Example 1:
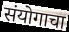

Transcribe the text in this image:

संयोगाचा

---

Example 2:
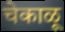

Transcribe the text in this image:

चेकाळू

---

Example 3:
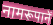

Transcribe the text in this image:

नामरूपानें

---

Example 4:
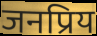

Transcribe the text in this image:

जनप्रिय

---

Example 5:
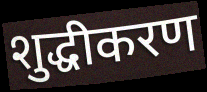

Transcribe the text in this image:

शुद्धीकरण